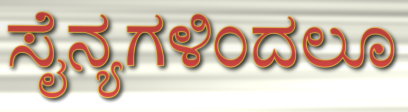
ಸೈನ್ಯಗಳಿಂದಲೂ